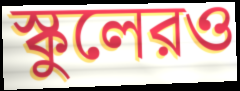
স্কুলেরও